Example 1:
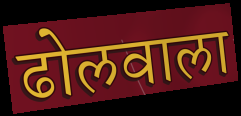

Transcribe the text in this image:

ढोलवाला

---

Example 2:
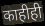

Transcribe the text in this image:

काहीही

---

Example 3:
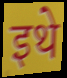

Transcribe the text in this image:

इथे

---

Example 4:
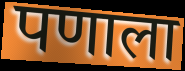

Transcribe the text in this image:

पणाला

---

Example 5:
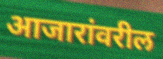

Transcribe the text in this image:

आजारांवरील